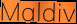
Maldiv